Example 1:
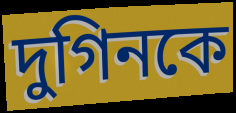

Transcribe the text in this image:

দুগিনকে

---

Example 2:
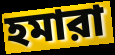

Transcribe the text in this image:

হমারা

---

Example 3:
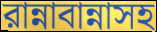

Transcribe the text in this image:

রান্নাবান্নাসহ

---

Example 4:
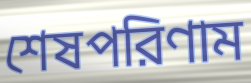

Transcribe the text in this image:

শেষপরিণাম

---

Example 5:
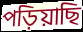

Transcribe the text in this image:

পড়িয়াছি